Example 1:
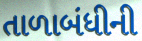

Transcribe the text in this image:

તાળાબંધીની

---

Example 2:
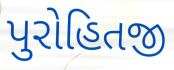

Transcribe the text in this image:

પુરોહિતજી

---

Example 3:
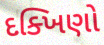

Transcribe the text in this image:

દક્ખિણો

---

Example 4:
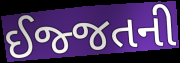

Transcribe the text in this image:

ઈજ્જતની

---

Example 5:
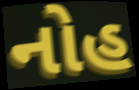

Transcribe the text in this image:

નોહ